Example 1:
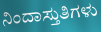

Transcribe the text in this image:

ನಿಂದಾಸ್ತುತಿಗಳು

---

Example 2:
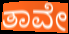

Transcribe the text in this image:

ತಾವೇ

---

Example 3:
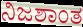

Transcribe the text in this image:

ನಿಜಶಾಂತ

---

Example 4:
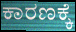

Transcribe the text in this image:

ಕಾರಣಕ್ಕೆ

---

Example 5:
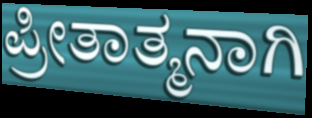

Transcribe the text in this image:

ಪ್ರೀತಾತ್ಮನಾಗಿ